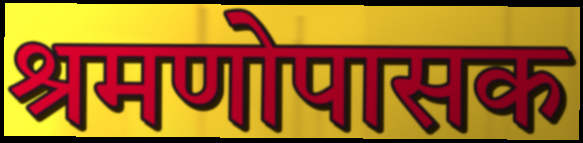
श्रमणोपासक